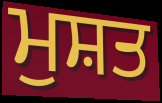
ਮੁਸ਼ਤ